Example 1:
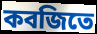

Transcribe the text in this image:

কবজিতে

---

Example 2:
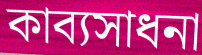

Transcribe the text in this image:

কাব্যসাধনা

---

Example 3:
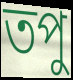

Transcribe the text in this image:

তপু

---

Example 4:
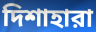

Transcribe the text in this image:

দিশাহারা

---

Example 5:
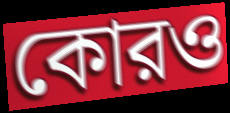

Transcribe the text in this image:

কোরও